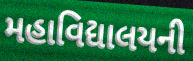
મહાવિદ્યાલયની